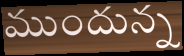
ముందున్న